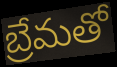
బ్రేమతో